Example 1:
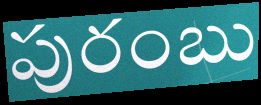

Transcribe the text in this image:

పురంబు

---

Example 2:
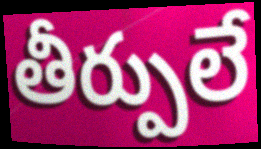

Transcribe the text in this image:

తీర్పులే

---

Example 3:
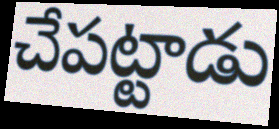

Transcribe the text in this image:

చేపట్టాడు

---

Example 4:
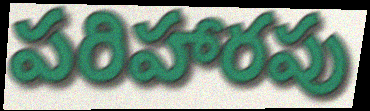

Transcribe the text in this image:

పరిహారపు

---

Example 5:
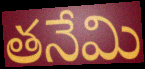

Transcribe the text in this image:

తనేమి